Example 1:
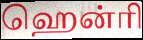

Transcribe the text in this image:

ஹென்ரி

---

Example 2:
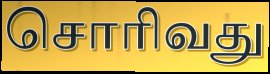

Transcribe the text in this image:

சொரிவது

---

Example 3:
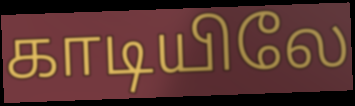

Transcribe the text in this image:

காடியிலே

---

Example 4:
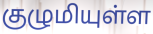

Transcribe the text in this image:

குழுமியுள்ள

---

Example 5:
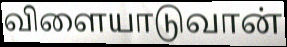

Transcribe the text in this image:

விளையாடுவான்